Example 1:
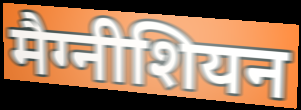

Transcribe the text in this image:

मैग्नीशियन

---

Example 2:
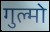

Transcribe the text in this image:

गुल्मो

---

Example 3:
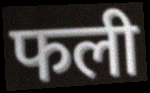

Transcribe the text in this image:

फली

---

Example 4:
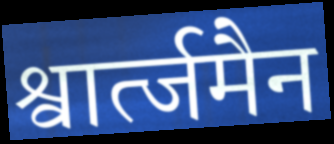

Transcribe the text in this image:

श्वार्त्जमैन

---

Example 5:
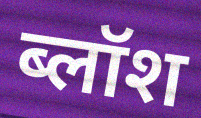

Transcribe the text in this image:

ब्लॉश